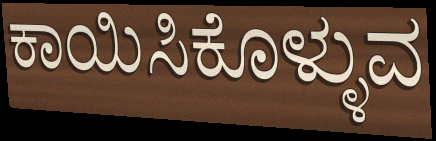
ಕಾಯಿಸಿಕೊಳ್ಳುವ